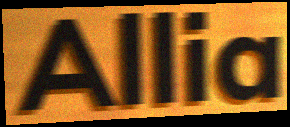
Allia